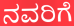
ನವರಿಗೆ